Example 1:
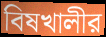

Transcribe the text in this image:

বিষখালীর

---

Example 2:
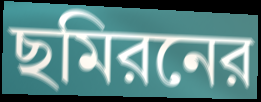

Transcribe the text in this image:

ছমিরনের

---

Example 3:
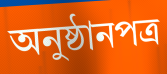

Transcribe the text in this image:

অনুষ্ঠানপত্র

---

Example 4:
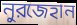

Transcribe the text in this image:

নুরজেহান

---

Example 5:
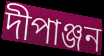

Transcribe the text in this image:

দীপাঞ্জন